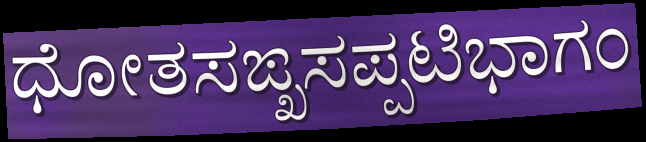
ಧೋತಸಙ್ಖಸಪ್ಪಟಿಭಾಗಂ